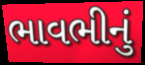
ભાવભીનું